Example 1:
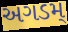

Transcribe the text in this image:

અગડમ્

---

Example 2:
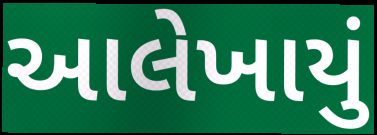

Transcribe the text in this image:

આલેખાયું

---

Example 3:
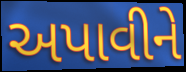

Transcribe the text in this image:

અપાવીને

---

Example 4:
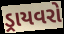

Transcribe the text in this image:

ડ્રાયવરો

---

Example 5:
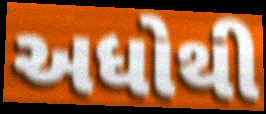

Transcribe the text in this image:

અધોથી